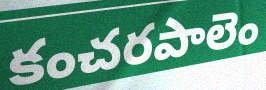
కంచరపాలెం